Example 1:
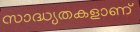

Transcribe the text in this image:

സാദ്ധ്യതകളാണ്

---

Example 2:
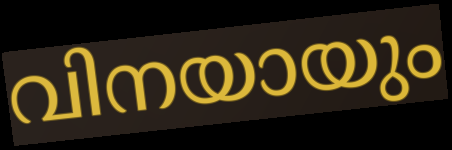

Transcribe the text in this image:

വിനയായും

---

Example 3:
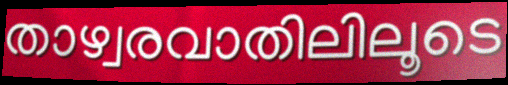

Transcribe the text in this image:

താഴ്വരവാതിലിലൂടെ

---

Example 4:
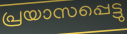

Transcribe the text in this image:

പ്രയാസപ്പെട്ടു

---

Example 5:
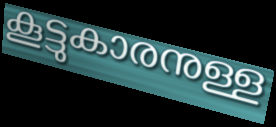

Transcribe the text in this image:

കൂട്ടുകാരനുള്ള